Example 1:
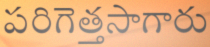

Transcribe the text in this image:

పరిగెత్తసాగారు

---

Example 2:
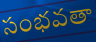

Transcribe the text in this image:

సంభవతా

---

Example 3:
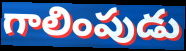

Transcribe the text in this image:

గాలింపుడు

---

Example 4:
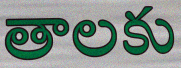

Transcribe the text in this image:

తాలకు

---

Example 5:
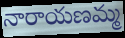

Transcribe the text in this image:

నారాయణమ్మ